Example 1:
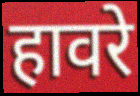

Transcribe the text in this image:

हावरे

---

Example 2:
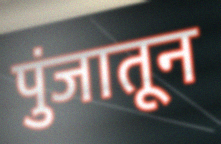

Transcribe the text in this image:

पुंजातून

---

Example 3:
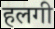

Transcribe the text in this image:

हलगी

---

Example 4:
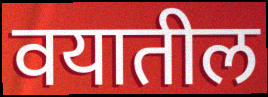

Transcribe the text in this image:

वयातील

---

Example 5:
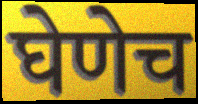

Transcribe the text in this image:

घेणेच